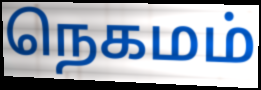
நெகமம்